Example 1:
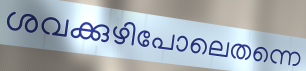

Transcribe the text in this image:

ശവക്കുഴിപോലെതന്നെ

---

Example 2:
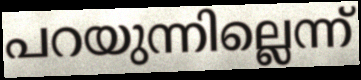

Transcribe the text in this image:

പറയുന്നില്ലെന്ന്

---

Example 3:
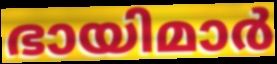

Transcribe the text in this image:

ഭായിമാർ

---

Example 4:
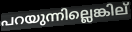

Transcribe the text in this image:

പറയുന്നില്ലെങ്കില്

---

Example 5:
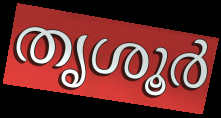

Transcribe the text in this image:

തൃശൂർ